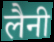
लैनी